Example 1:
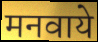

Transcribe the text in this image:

मनवाये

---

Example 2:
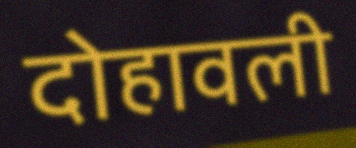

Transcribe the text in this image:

दोहावली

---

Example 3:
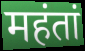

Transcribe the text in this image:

महंतां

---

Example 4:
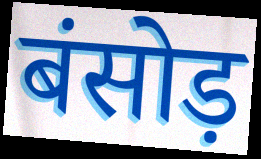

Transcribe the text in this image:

बंसोड़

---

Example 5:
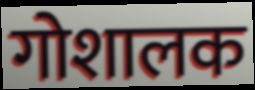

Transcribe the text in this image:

गोशालक